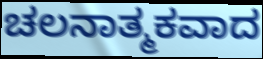
ಚಲನಾತ್ಮಕವಾದ